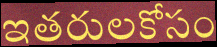
ఇతరులకోసం